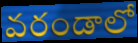
వరండాలో